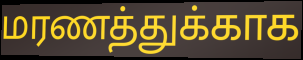
மரணத்துக்காக